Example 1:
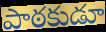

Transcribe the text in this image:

పాఠకుడూ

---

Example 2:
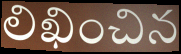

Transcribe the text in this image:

లిఖించిన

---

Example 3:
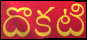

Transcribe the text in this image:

దొకటి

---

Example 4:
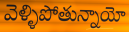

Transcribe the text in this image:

వెళ్ళిపోతున్నాయో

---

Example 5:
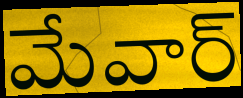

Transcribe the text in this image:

మేవార్